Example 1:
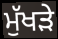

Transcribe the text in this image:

ਮੁੱਖੜੇ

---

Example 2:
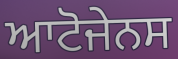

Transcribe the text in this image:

ਆਟੋਜੇਨਸ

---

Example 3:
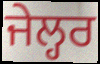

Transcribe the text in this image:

ਜੇਲ੍ਹਰ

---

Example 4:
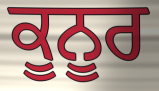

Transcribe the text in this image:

ਕੂਨੂਰ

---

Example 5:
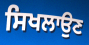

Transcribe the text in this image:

ਸਿਖਲਾਉਣ